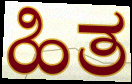
ಹಿತ